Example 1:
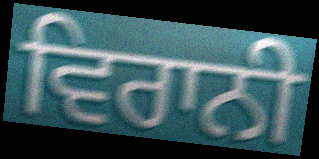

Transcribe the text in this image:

ਵਿਰਾਨੀ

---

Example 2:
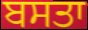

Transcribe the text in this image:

ਬਸਤਾ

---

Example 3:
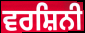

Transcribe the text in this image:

ਵਰਸ਼ਿਨੀ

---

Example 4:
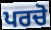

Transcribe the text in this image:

ਪਰਚੋ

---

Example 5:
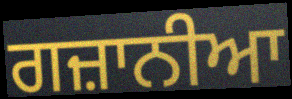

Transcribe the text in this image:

ਗਜ਼ਾਨੀਆ